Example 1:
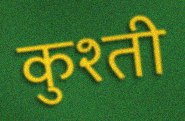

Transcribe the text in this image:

कुश्ती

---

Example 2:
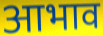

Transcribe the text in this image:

आभाव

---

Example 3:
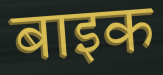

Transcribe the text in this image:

बाइक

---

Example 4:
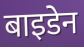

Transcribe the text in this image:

बाइडेन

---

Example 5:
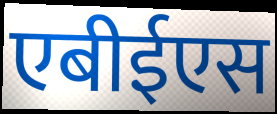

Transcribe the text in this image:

एबीईएस